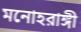
মনোহরাঙ্গী